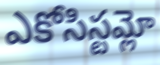
ఎకోసిస్టమ్లో